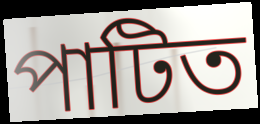
পাটিত